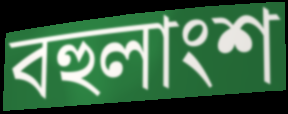
বহুলাংশ